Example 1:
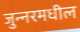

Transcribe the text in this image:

जुन्नरमधील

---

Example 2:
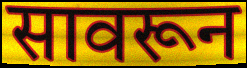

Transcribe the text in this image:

सावरून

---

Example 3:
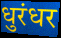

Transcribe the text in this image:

धुरंधर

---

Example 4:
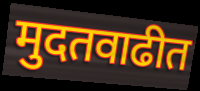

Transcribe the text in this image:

मुदतवाढीत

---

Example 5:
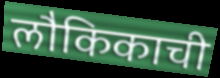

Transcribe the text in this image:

लौकिकाची